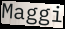
Maggi